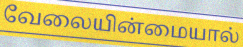
வேலையின்மையால்